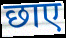
छाए